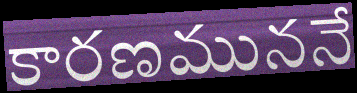
కారణముననే